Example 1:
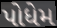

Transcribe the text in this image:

પોધેમ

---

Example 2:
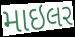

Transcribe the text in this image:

માઇલર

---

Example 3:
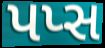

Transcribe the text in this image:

પપ્સ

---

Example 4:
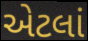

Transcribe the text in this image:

એટલાં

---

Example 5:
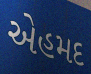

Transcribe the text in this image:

એહમદ